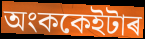
অংককেইটাৰ